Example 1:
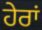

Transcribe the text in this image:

ਹੇਰਾਂ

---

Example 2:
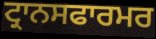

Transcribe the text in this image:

ਟ੍ਰਾਨਸਫਾਰਮਰ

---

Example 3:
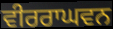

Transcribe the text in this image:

ਵੀਰਰਾਘਵਨ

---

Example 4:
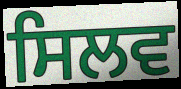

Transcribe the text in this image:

ਸਿਲਵ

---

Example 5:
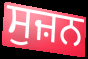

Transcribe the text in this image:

ਸੁਜ਼ਨ